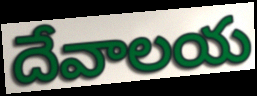
దేవాలయ